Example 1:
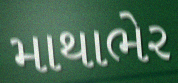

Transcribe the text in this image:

માથાભેર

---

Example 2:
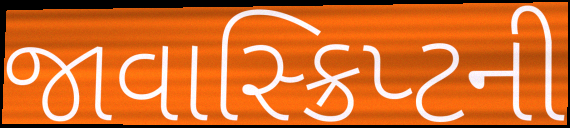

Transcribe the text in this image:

જાવાસ્ક્રિપ્ટની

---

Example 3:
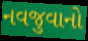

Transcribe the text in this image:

નવજુવાનો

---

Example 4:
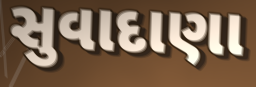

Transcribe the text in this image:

સુવાદાણા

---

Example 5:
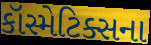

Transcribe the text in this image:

કૉસ્મેટિક્સના